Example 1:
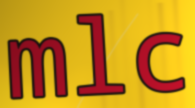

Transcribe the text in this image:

mlc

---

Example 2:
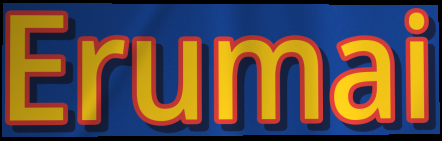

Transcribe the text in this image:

Erumai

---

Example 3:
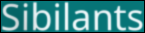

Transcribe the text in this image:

Sibilants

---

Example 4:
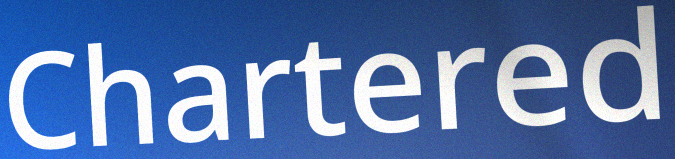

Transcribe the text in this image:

Chartered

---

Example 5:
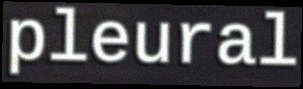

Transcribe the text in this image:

pleural